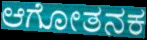
ಆಗೋತನಕ